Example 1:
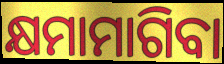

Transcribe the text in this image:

କ୍ଷମାମାଗିବା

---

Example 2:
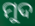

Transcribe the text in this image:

ମୁଦ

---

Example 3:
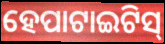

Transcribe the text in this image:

ହେପାଟାଇଟିସ୍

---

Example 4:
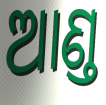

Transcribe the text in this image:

ଆଣ୍ଡ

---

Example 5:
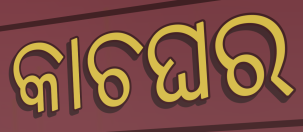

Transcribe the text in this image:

କାଚଘର